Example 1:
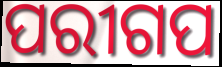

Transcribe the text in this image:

ପରୀଗପ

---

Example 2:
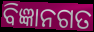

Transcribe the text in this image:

ବିଜ୍ଞାନଗତ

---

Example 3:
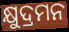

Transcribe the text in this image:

କ୍ଷୁଦ୍ରମନ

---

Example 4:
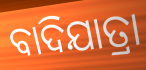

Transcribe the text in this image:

ବାଦିଯାତ୍ରା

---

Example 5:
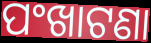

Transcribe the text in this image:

ପଂଖାଟଣା